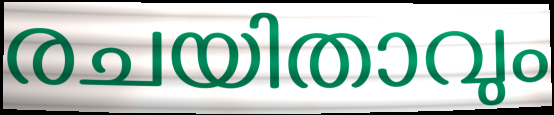
രചയിതാവും